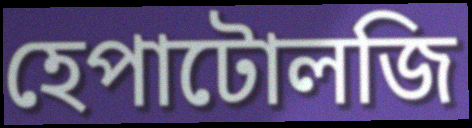
হেপাটোলজি